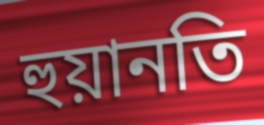
হুয়ানতি